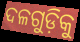
ଦଳଗୁଡ଼ିକୁ